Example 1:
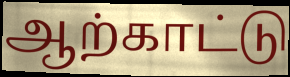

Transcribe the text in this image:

ஆற்காட்டு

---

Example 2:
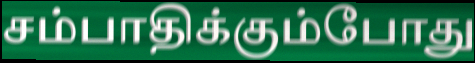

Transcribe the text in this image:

சம்பாதிக்கும்போது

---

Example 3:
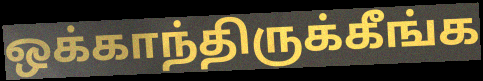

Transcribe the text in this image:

ஒக்காந்திருக்கீங்க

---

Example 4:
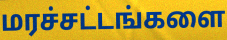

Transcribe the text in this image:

மரச்சட்டங்களை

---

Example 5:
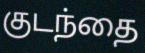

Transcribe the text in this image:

குடந்தை